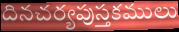
దినచర్యపుస్తకములు